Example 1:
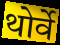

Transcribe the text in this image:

थोर्वे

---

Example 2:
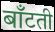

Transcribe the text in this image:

बाँटती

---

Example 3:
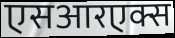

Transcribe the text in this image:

एसआरएक्स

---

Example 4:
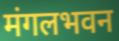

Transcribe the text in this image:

मंगलभवन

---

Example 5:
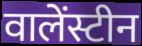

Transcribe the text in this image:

वालेंस्टीन